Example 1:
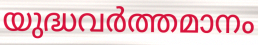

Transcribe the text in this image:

യുദ്ധവർത്തമാനം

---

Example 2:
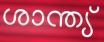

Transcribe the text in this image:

ശാന്ത്യ്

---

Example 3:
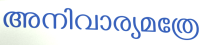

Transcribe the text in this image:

അനിവാര്യമത്രേ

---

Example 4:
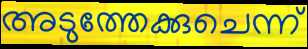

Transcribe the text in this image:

അടുത്തേക്കുചെന്ന്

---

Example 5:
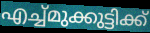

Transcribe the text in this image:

എച്ച്മുക്കുട്ടിക്ക്